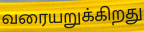
வரையறுக்கிறது